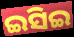
ଇସିଇ